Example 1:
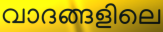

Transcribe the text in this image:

വാദങ്ങളിലെ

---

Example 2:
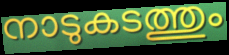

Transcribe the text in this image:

നാടുകടത്തും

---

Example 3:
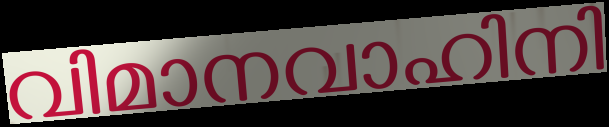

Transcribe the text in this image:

വിമാനവാഹിനി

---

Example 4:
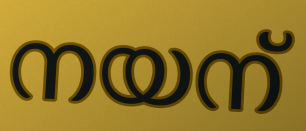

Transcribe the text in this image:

നയന്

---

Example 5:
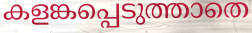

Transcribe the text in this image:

കളങ്കപ്പെടുത്താതെ